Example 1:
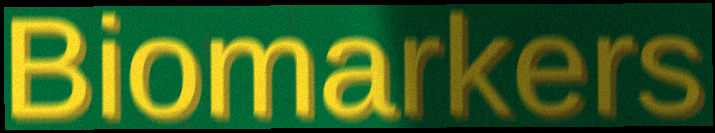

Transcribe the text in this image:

Biomarkers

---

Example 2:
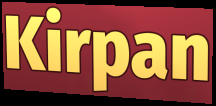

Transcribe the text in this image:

Kirpan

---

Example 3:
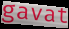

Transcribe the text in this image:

gavat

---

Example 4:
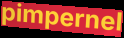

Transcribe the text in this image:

pimpernel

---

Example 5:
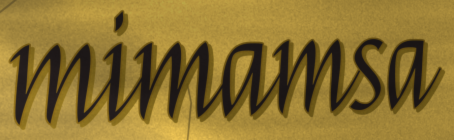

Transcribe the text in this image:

mimamsa